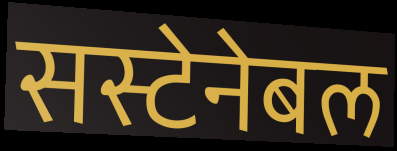
सस्टेनेबल